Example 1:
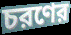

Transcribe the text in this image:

চরণের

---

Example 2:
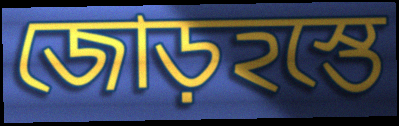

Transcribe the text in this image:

জোড়হস্তে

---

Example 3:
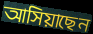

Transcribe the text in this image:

আসিয়াছেন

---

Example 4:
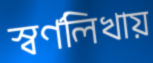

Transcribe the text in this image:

স্বর্ণলিখায়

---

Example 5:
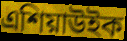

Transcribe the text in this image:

এশিয়াউইক